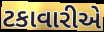
ટકાવારીએ